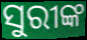
ସୁରୀଙ୍କ